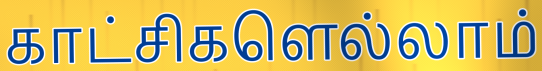
காட்சிகளெல்லாம்